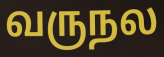
வருநல